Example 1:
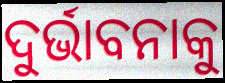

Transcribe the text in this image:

ଦୁର୍ଭାବନାକୁ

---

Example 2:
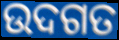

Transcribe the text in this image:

ଉଦଗତ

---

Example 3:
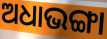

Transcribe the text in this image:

ଅଧାଭଙ୍ଗା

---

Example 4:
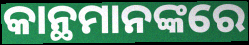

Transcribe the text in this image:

କାନ୍ଥମାନଙ୍କରେ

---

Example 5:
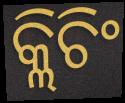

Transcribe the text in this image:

କ୍ଲିଚିଂ